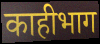
काहीभाग